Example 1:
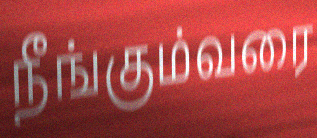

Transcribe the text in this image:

நீங்கும்வரை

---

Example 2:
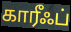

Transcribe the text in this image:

காரீஃப்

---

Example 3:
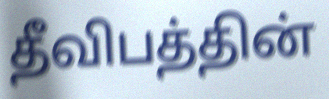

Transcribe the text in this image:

தீவிபத்தின்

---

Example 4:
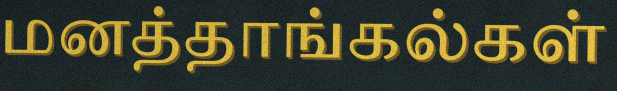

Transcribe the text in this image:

மனத்தாங்கல்கள்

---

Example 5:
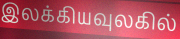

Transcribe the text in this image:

இலக்கியவுலகில்